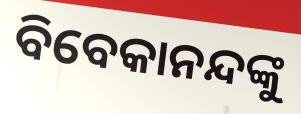
ବିବେକାନନ୍ଦଙ୍କୁ